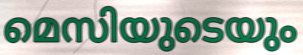
മെസിയുടെയും